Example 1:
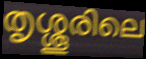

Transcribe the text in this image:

തൃശ്ശൂരിലെ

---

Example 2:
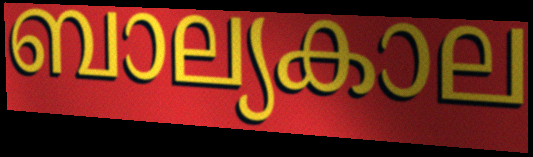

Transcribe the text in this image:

ബാല്യകാല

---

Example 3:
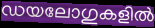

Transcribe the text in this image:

ഡയലോഗുകളിൽ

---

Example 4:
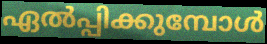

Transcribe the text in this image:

ഏൽപ്പിക്കുമ്പോൾ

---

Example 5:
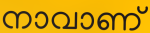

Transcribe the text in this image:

നാവാണ്